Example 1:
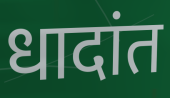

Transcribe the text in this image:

धादांत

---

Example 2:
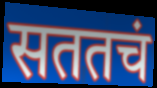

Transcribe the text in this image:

सततचं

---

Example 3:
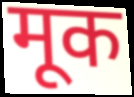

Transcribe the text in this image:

मूक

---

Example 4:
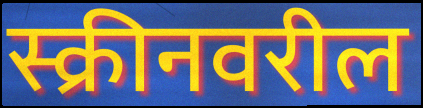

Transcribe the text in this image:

स्क्रीनवरील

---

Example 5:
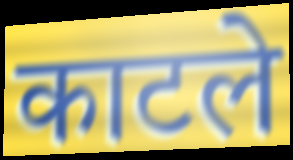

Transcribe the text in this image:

काटले